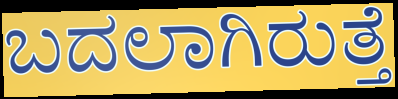
ಬದಲಾಗಿರುತ್ತೆ